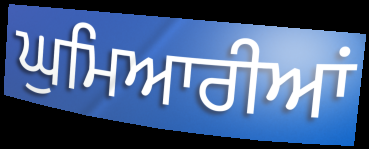
ਘੁਮਿਆਰੀਆਂ